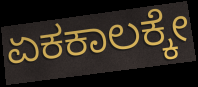
ಏಕಕಾಲಕ್ಕೇ